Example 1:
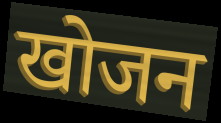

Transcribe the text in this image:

खोजन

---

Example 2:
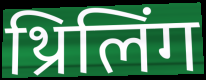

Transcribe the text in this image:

थ्रिलिंग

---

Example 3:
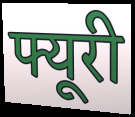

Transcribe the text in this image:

फ्यूरी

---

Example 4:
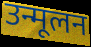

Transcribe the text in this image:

उन्‍मूलन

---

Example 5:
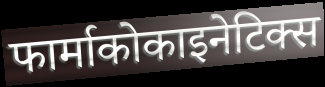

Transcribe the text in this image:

फार्माकोकाइनेटिक्स